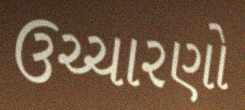
ઉચ્ચારણો